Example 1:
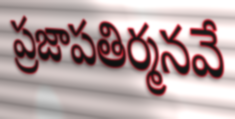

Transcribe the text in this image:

ప్రజాపతిర్మనవే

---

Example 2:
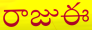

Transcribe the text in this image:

రాజుఈ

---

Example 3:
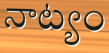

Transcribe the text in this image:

నాట్యం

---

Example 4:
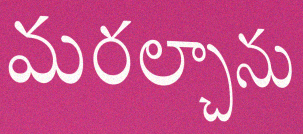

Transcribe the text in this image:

మరల్చాను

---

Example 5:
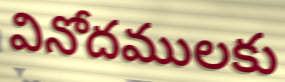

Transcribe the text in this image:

వినోదములకు